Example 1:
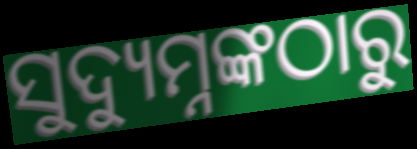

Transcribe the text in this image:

ସୁଦ୍ୟୁମ୍ନଙ୍କଠାରୁ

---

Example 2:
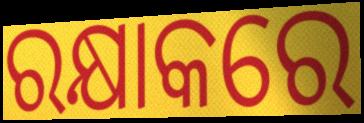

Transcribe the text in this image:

ରକ୍ଷାକରେ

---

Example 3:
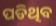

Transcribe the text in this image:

ପଡିଥିବ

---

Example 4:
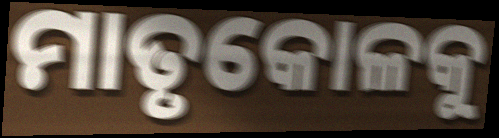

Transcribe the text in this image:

ମାତୃକୋଳକୁ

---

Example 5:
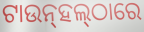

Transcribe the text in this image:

ଟାଉନ୍‌ହଲ୍‌ଠାରେ